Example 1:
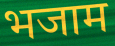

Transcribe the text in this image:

भजाम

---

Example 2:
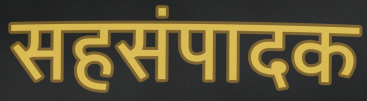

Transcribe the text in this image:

सहसंपादक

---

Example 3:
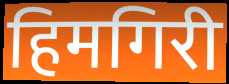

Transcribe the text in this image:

हिमगिरी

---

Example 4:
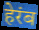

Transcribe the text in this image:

हेरंब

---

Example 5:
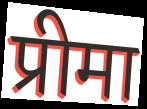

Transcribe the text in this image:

प्रीमा